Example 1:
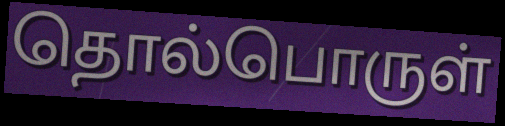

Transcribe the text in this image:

தொல்பொருள்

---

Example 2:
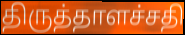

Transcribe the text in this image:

திருத்தாளச்சதி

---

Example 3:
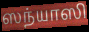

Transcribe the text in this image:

ஸந்யாஸி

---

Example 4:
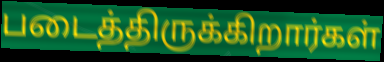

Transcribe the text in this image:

படைத்திருக்கிறார்கள்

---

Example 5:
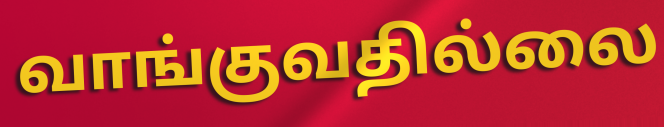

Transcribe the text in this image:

வாங்குவதில்லை